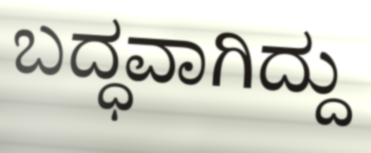
ಬದ್ಧವಾಗಿದ್ದು